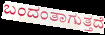
ಬಂದಂತಾಗುತ್ತದೆ